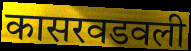
कासरवडवली